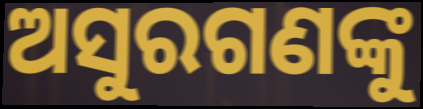
ଅସୁରଗଣଙ୍କୁ